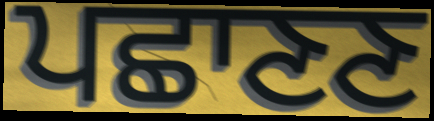
ਪਛਾਣਣ